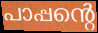
പാപ്പന്റെ